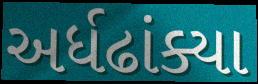
અર્ધઢાંક્યા